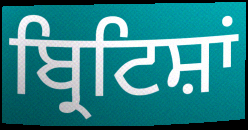
ਬ੍ਰਿਟਿਸ਼ਾਂ